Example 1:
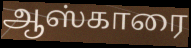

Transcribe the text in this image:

ஆஸ்காரை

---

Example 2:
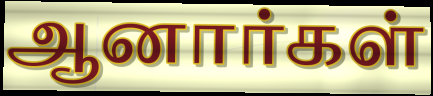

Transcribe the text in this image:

ஆனார்கள்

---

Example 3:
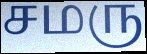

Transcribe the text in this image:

சமரு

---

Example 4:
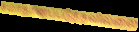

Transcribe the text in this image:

சமாதானப்படுத்தவில்லை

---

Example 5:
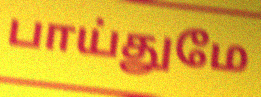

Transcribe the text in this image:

பாய்துமே